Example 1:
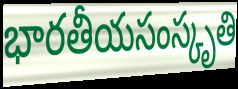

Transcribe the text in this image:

భారతీయసంస్కృతి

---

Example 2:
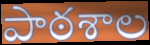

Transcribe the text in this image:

పాఠశాల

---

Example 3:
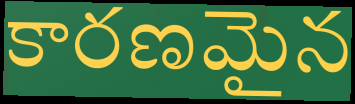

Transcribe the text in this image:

కారణమైన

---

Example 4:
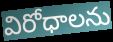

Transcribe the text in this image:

విరోధాలను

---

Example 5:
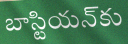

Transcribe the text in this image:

బాస్టియన్‌కు